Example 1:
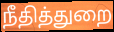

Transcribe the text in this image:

நீதித்துறை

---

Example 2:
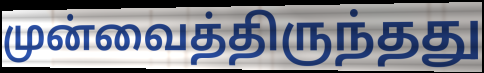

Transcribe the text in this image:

முன்வைத்திருந்தது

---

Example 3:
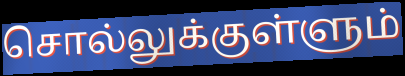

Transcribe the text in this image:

சொல்லுக்குள்ளும்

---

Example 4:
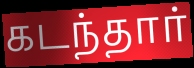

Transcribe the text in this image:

கடந்தார்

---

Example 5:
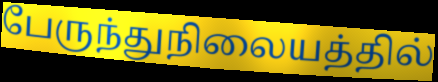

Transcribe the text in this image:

பேருந்துநிலையத்தில்